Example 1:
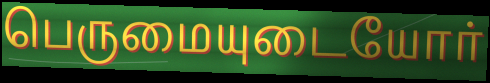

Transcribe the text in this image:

பெருமையுடையோர்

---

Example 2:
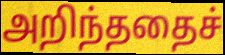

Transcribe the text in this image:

அறிந்ததைச்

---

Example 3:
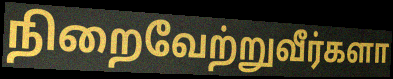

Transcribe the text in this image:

நிறைவேற்றுவீர்களா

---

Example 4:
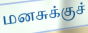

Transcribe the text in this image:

மனசுக்குச்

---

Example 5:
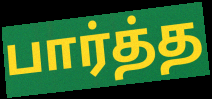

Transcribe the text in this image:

பார்த்த